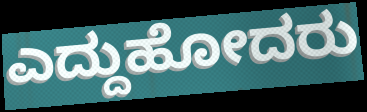
ಎದ್ದುಹೋದರು